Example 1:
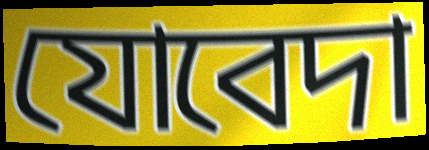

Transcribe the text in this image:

যোবেদা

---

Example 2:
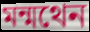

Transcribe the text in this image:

মন্মথেন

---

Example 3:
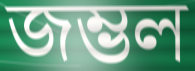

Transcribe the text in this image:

জম্ভল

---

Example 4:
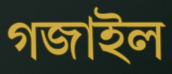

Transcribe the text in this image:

গজাইল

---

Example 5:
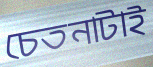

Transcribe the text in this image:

চেতনাটাই